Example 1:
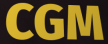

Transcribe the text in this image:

CGM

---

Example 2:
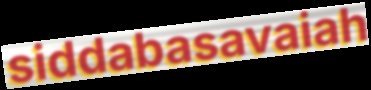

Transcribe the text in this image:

siddabasavaiah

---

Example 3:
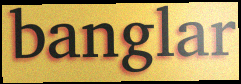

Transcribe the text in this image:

banglar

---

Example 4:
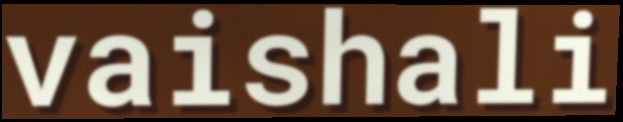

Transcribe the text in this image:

vaishali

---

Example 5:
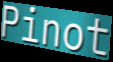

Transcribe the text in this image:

Pinot